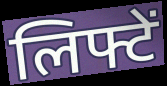
लिफ्टें